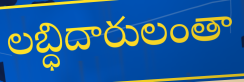
లబ్ధిదారులంతా